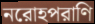
নরোহপরাণি